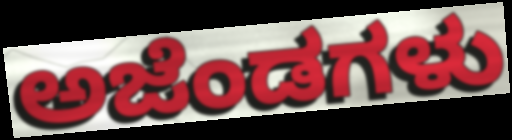
ಅಜೆಂಡಗಳು